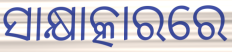
ସାକ୍ଷାତ୍କାରରେ